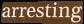
arresting